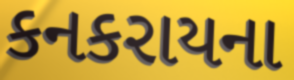
કનકરાયના